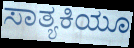
ಸಾತ್ಯಕಿಯೂ